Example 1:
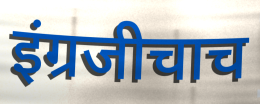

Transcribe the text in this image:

इंग्रजीचाच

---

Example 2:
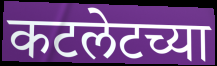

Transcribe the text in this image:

कटलेटच्या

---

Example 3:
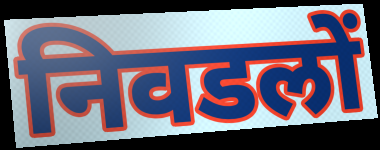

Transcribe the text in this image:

निवडलों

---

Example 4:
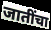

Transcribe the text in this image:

जातींचा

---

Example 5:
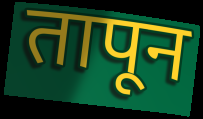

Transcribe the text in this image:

तापून